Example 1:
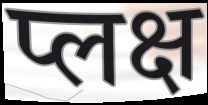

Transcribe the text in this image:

प्लक्ष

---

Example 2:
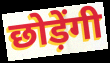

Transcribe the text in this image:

छोड़ेंगी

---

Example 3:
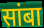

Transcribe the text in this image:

सांबा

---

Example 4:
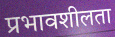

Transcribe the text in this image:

प्रभावशीलता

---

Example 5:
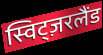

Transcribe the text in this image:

स्विट्ज़रलैंड